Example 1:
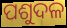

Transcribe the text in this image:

ପଶୁଦଳ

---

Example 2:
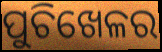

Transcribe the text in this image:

ପୁଚିଖେଳର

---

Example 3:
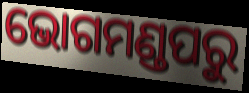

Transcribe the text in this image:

ଭୋଗମଣ୍ଡପରୁ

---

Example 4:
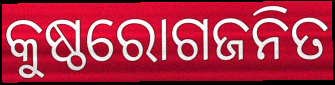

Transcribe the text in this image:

କୁଷ୍ଠରୋଗଜନିତ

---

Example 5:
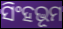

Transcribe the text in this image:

ସିଂହଭୂମ